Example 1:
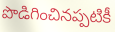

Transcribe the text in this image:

పొడిగించినప్పటికీ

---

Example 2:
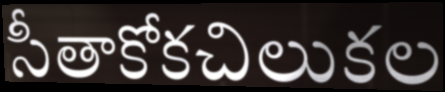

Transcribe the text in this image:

సీతాకోకచిలుకల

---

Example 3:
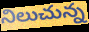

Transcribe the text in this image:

నిలుచున్న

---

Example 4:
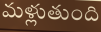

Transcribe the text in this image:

మళ్లుతుంది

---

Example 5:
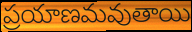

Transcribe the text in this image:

ప్రయాణమవుతాయి